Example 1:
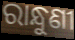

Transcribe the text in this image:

ରାନ୍ଧୁଣୀ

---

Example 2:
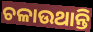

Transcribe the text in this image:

ଚଳାଉଥାନ୍ତି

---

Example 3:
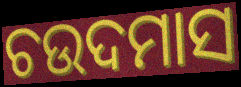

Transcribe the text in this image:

ଚଉଦମାସ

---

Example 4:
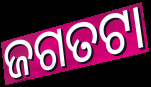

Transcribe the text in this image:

ଜଗତଟା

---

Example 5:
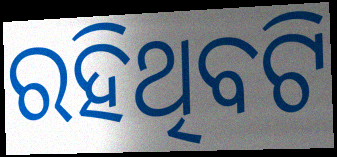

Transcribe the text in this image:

ରହିଥିବଟି